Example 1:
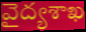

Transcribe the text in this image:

వైద్యశాఖ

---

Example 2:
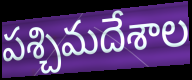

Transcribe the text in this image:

పశ్చిమదేశాల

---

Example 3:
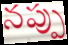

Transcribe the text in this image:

నప్పు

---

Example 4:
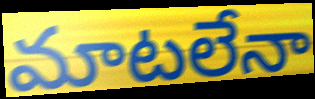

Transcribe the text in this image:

మాటలేనా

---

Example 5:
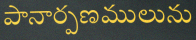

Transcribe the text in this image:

పానార్పణములును